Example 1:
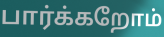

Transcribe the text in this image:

பார்க்கறோம்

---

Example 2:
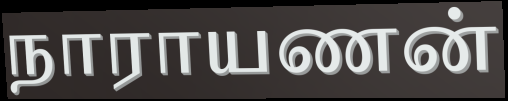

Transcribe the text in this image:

நாராயணன்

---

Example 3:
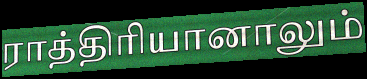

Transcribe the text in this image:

ராத்திரியானாலும்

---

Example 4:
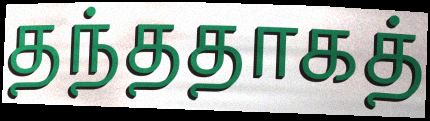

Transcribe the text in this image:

தந்ததாகத்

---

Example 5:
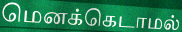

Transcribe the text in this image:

மெனக்கெடாமல்